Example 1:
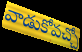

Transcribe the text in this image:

వాడుకోవచ్చో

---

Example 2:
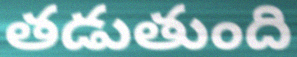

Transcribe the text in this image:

తడుతుంది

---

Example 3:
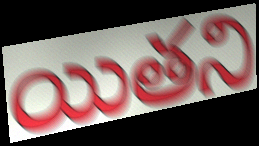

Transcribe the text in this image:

యితని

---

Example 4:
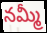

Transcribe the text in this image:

నమ్మీ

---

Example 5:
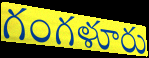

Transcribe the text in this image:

గంగళూరు